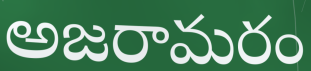
అజరామరం